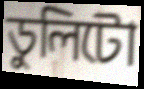
ডুলিটো